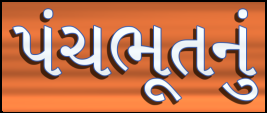
પંચભૂતનું